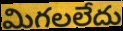
మిగలలేదు